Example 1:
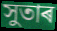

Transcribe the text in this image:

সুতাৰ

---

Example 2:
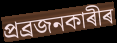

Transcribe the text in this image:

প্ৰব্ৰজনকাৰীৰ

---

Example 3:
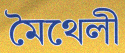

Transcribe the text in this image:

মৈথেলী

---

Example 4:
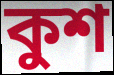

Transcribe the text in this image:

কুশ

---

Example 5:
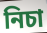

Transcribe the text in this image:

নিচা